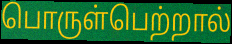
பொருள்பெற்றால்